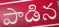
పాడిన